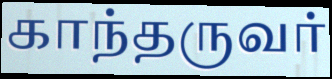
காந்தருவர்